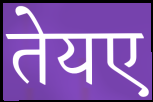
तेयए